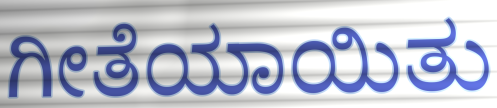
ಗೀತೆಯಾಯಿತು